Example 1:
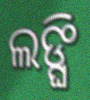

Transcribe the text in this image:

ଲଙ୍ଘି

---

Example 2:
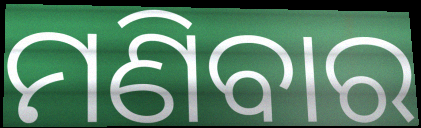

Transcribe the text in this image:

ମଣିବାର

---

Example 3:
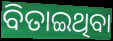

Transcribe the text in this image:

ବିତାଇଥିବା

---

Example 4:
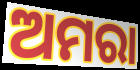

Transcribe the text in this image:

ଅମରା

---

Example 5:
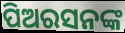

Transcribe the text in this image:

ପିଅରସନଙ୍କ